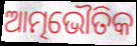
ଆତ୍ମଭୌତିକ